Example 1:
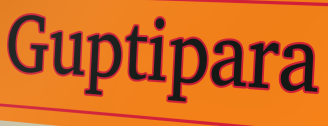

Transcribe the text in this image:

Guptipara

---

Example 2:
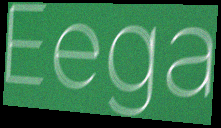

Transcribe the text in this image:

Eega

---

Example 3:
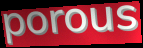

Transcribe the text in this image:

porous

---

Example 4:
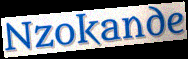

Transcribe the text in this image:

Nzokande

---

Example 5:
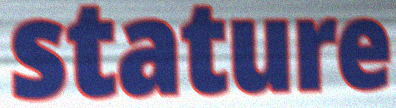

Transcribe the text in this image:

stature